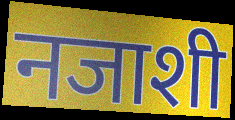
नजाशी